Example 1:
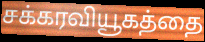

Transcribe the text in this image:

சக்கரவியூகத்தை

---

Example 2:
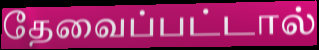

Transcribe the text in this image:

தேவைப்பட்டால்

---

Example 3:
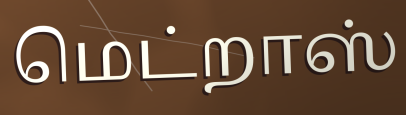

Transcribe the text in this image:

மெட்றாஸ்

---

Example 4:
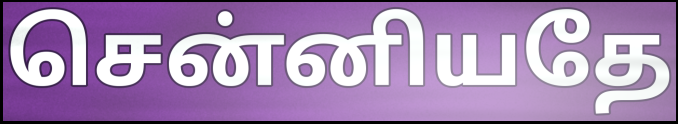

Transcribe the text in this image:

சென்னியதே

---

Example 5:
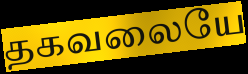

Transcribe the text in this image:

தகவலையே